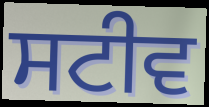
ਸਟੀਵ